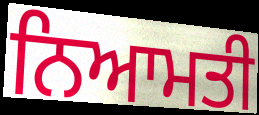
ਨਿਆਮਤੀ